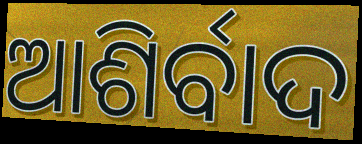
ଆଶିର୍ବାଦ